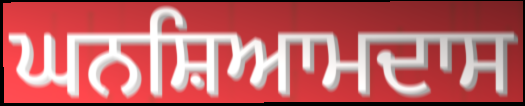
ਘਨਸ਼ਿਆਮਦਾਸ